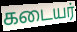
கடையர்